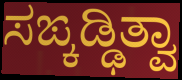
ಸಙ್ಕಡ್ಢಿತ್ವಾ